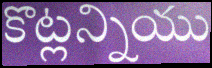
కొట్లన్నియు